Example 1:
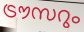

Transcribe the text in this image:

ട്രൗസറും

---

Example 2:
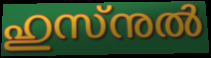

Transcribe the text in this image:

ഹുസ്നുൽ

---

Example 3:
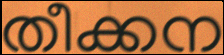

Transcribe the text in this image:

തീക്കന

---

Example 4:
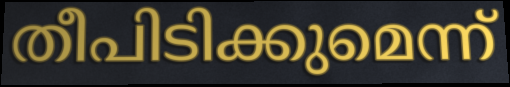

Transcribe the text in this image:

തീപിടിക്കുമെന്ന്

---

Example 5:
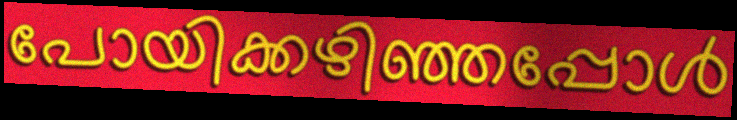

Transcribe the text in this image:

പോയിക്കഴിഞ്ഞപ്പോൾ